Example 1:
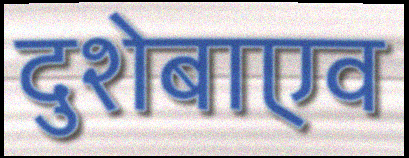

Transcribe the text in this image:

दुशेबाएव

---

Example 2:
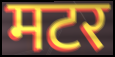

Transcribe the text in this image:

मटर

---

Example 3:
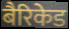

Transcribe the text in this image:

बैरिकेड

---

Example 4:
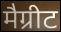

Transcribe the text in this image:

मैग्रीट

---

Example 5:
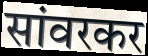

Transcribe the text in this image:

सांवरकर